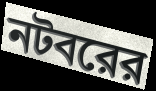
নটবরের